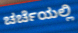
ಚರ್ಚೆಯಲ್ಲಿ